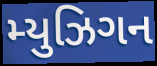
મ્યુઝિગન